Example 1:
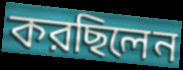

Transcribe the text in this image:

করছিলেন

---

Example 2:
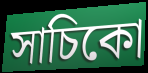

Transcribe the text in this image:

সাচিকো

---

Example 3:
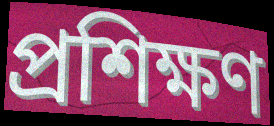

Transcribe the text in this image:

প্রশিক্ষণ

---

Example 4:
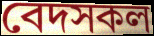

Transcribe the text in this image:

বেদসকল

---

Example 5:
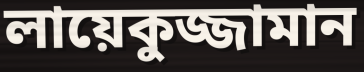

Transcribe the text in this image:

লায়েকুজ্জামান